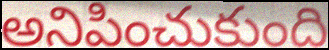
అనిపించుకుంది